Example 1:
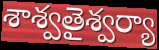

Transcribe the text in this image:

శాశ్వతైశ్వర్యా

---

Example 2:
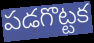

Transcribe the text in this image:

పడగొట్టక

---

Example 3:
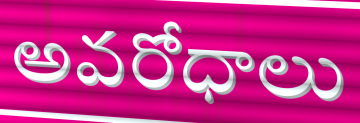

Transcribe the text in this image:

అవరోధాలు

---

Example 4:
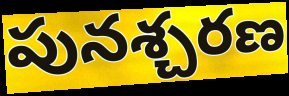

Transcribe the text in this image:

పునశ్చరణ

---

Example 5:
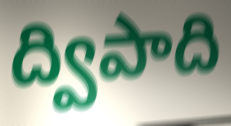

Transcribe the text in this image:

ద్విపాది